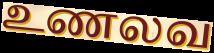
உணலவ